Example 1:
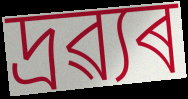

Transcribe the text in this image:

দ্ৰৱ্যৰ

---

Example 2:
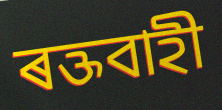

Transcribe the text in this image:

ৰক্তবাহী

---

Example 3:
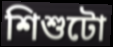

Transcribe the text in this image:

শিশুটো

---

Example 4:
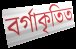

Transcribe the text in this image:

বৰ্গাকৃতিত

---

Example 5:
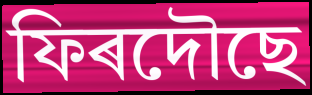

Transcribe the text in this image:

ফিৰদৌছে